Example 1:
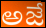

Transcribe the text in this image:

అజే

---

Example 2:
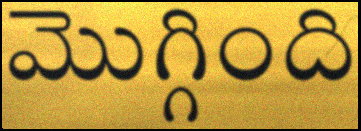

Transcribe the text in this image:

మొగ్గింది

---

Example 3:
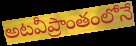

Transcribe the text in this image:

అటవీప్రాంతంలోనే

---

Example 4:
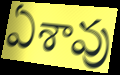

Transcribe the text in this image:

ఏశావు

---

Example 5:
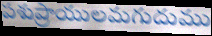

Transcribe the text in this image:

పశుప్రాయులమగుదుము